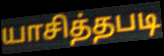
யாசித்தபடி